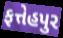
ફત્તેહપુર